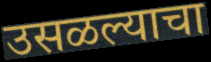
उसळल्याचा